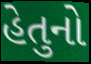
હેતુનો